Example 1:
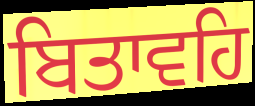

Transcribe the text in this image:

ਬਿਤਾਵਹਿ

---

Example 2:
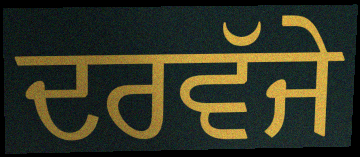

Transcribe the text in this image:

ਦਰਵੱਜੇ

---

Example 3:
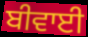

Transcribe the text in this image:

ਬੀਵਾਈ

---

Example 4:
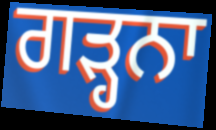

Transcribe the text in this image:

ਗੜ੍ਹਨਾ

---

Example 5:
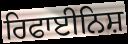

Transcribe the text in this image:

ਰਿਫਾਈਨਿਸ਼